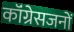
कॉंग्रेसजनों